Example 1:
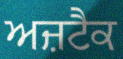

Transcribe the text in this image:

ਅਜ਼ਟੈਕ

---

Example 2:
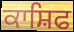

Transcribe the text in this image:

ਕਾਸ਼ਿਫ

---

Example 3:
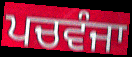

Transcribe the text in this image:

ਪਚਵੰਜਾ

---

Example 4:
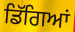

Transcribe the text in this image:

ਡਿੱਗਿਆਂ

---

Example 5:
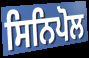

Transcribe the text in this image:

ਸਿਨਿਪੋਲ